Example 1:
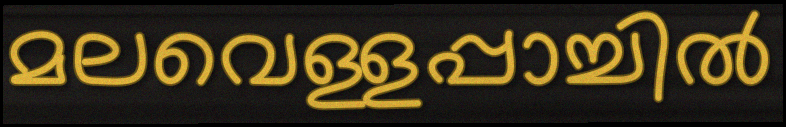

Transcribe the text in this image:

മലവെള്ളപ്പാച്ചിൽ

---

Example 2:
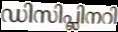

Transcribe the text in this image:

ഡിസിപ്ലിനറി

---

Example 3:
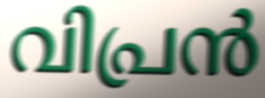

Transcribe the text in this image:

വിപ്രൻ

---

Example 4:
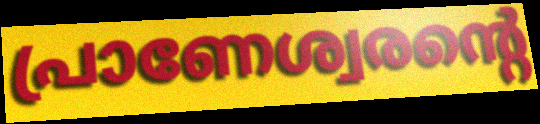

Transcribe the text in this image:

പ്രാണേശ്വരന്റെ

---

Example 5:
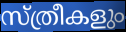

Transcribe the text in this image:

സ്ത്രീകളും